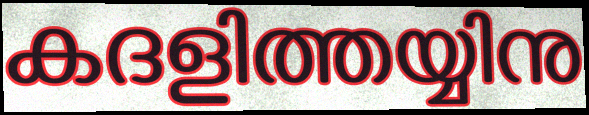
കദളിത്തയ്യിനു